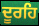
ਦੂਰਹਿ